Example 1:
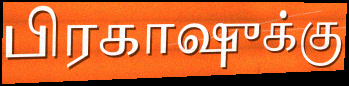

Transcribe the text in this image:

பிரகாஷுக்கு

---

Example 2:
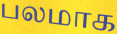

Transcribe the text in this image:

பலமாக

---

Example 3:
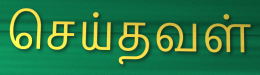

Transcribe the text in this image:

செய்தவள்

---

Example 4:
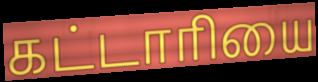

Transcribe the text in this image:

கட்டாரியை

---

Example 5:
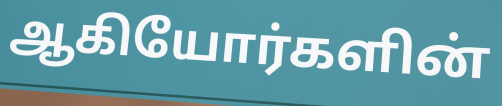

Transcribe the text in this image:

ஆகியோர்களின்